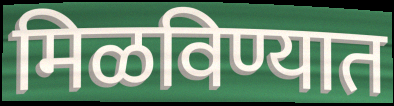
मिळविण्यात